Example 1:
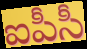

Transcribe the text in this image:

ఐపీసీ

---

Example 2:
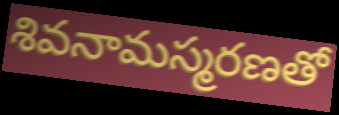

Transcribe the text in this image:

శివనామస్మరణతో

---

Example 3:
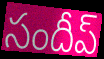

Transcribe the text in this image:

సందీప్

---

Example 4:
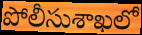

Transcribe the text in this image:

పోలీసుశాఖలో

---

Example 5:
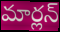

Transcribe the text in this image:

మార్లన్